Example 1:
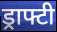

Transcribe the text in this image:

ड्राफ्टी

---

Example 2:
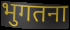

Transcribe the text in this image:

भुगतना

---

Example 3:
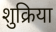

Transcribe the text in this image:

शुक्रिया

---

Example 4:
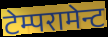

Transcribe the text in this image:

टेम्परामेन्ट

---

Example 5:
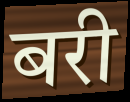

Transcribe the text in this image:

बरी